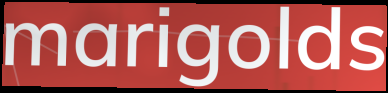
marigolds